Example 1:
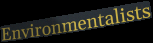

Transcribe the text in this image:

Environmentalists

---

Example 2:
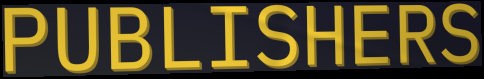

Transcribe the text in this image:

PUBLISHERS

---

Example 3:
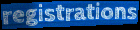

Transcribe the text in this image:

registrations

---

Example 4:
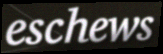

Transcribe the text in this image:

eschews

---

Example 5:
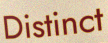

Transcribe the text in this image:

Distinct